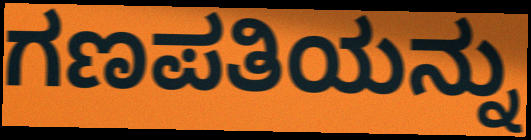
ಗಣಪತಿಯನ್ನು